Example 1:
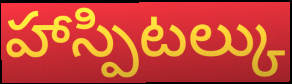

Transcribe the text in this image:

హాస్పిటల్కు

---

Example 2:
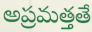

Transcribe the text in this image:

అప్రమత్తతే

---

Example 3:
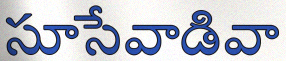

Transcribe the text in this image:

సూసేవాడివా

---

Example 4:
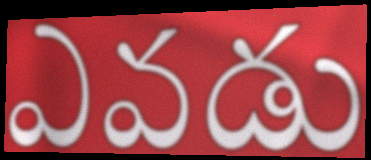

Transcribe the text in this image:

ఎవడు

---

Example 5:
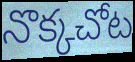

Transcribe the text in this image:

నొక్కచోట